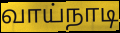
வாய்நாடி